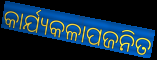
କାର୍ଯ୍ୟକଳାପଜନିତ